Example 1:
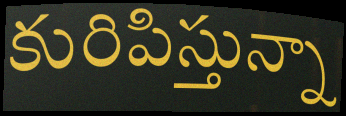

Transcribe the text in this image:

కురిపిస్తున్నా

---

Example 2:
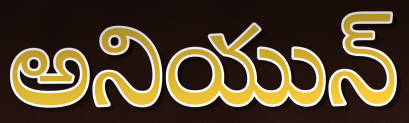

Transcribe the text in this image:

అనియున్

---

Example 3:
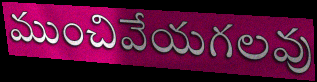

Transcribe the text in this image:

ముంచివేయగలవు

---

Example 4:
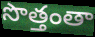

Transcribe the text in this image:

సొత్తంతా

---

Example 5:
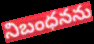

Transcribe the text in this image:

నిబంధనను